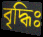
বৃদ্ধিঃ